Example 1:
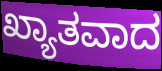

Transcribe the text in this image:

ಖ್ಯಾತವಾದ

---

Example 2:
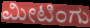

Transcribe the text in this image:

ಮೀಟಿಂಗು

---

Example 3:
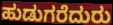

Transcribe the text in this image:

ಹುಡುಗರೆದುರು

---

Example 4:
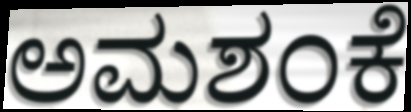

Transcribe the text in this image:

ಅಮಶಂಕೆ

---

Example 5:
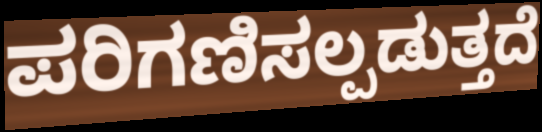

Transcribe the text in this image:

ಪರಿಗಣಿಸಲ್ಪಡುತ್ತದೆ